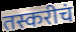
तस्करीचं